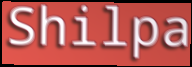
Shilpa